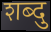
शब्दु